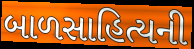
બાળસાહિત્યની